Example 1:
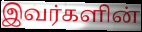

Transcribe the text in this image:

இவர்களின்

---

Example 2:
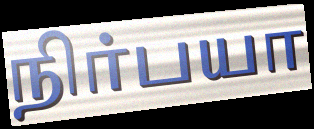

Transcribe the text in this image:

நிர்பயா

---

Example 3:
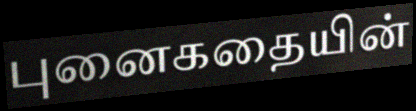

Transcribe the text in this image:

புனைகதையின்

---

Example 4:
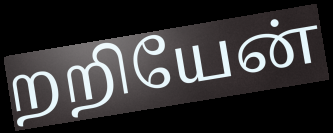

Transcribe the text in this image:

றறியேன்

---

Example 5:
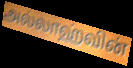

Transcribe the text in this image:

அல்லாஹ்வின்